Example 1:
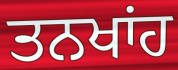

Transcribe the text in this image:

ਤਨਖਾਂਹ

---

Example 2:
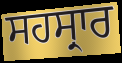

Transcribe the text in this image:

ਸਹਸ੍ਰਾਰ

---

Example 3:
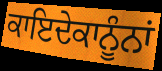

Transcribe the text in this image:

ਕਾਇਦੇਕਾਨੂੰਨਾਂ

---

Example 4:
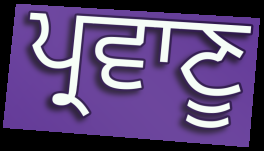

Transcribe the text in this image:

ਪ੍ਰਵਾਣੂ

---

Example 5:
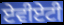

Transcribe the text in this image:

ਏਵੀਏਟੀ